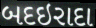
બદઇરાદા